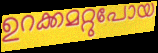
ഉറക്കമറ്റുപോയ